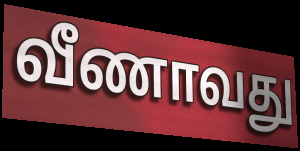
வீணாவது